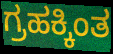
ಗ್ರಹಕ್ಕಿಂತ